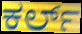
ಕರ್ಲ್